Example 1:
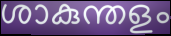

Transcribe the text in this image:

ശാകുന്തളം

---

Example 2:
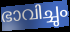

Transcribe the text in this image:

ഭാവിച്ചും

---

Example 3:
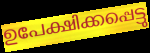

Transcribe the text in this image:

ഉപേക്ഷിക്കപ്പെട്ടു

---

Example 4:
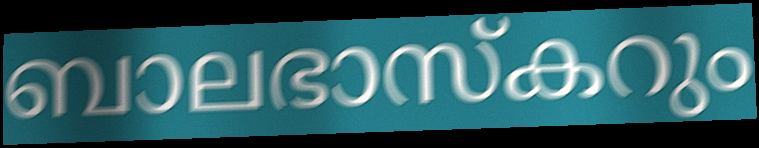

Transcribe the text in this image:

ബാലഭാസ്കറും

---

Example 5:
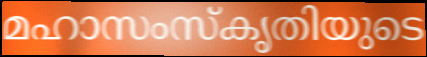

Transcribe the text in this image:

മഹാസംസ്കൃതിയുടെ